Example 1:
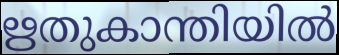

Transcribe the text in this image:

ഋതുകാന്തിയിൽ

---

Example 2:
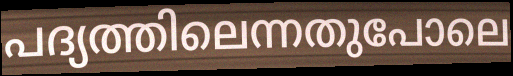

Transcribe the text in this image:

പദ്യത്തിലെന്നതുപോലെ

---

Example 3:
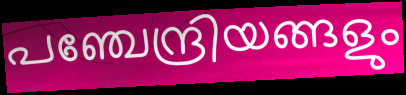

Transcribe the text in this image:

പഞ്ചേന്ദ്രിയങ്ങളും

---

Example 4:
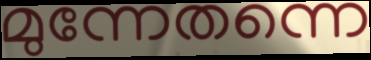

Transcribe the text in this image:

മുന്നേതന്നെ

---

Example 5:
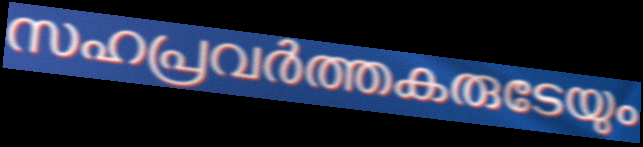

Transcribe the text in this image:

സഹപ്രവർത്തകരുടേയും